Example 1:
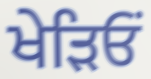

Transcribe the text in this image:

ਖੇੜਿਓਂ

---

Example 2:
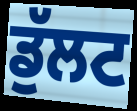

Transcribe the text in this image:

ਡੁੱਲਟ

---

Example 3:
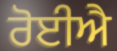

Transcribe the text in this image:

ਰੋਈਐ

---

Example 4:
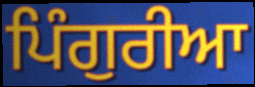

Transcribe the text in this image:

ਪਿੰਗੁਰੀਆ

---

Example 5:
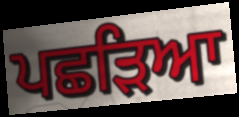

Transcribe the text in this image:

ਪਛੜਿਆ